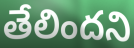
తేలిందని